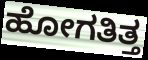
ಹೋಗತಿತ್ತ